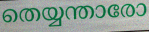
തെയ്യന്താരോ